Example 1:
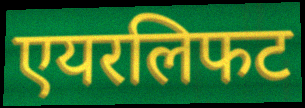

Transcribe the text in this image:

एयरलिफट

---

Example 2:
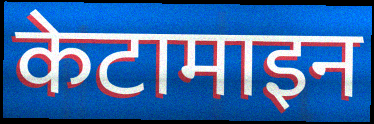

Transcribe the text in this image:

केटामाइन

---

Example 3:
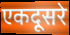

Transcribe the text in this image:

एकदूसरे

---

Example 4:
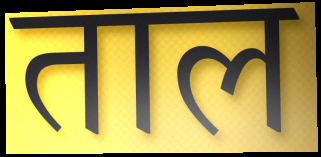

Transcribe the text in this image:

ताल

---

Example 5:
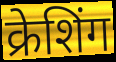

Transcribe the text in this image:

क्रेशिंग